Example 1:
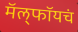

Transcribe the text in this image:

मॅल्फॉयचं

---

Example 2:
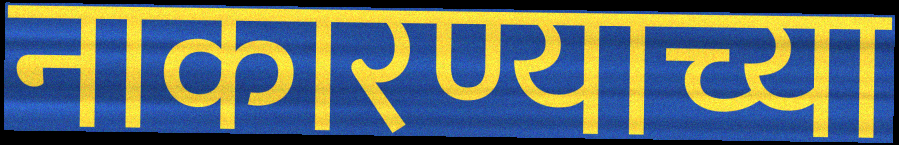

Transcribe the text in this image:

नाकारण्याच्या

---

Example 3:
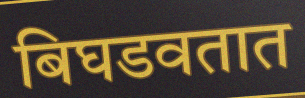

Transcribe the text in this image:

बिघडवतात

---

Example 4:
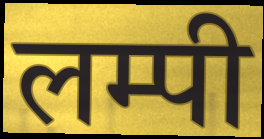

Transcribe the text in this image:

लम्पी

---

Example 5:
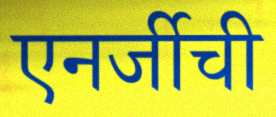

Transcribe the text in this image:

एनर्जीची